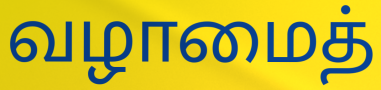
வழாமைத்